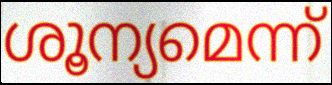
ശൂന്യമെന്ന്